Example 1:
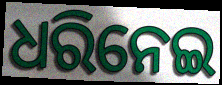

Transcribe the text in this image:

ଧରିନେଇ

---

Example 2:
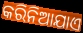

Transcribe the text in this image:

କରିନିଆଯାଏ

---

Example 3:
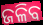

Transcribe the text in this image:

ଜଳିବ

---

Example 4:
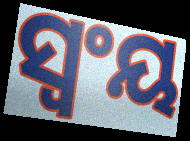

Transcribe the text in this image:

ସ୍ୱଂୟ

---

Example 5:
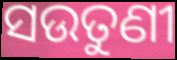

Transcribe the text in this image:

ସଉତୁଣୀ